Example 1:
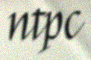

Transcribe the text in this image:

ntpc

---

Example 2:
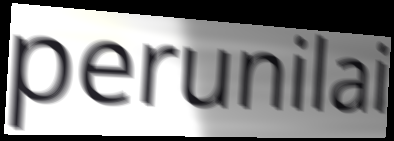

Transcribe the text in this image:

perunilai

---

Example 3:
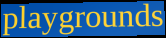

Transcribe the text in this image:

playgrounds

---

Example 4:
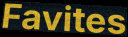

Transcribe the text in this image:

Favites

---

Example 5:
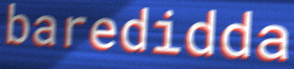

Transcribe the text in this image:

baredidda